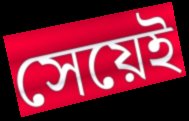
সেয়েই